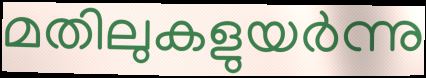
മതിലുകളുയർന്നു